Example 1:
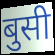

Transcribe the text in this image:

बुसी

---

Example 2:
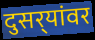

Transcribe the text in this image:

दुसर्‍यांवर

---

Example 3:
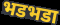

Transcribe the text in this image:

भडभडा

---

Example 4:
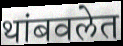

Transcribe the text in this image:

थांबवलेत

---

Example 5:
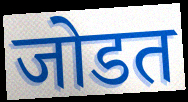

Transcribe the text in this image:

जोडत